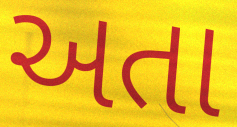
અતા